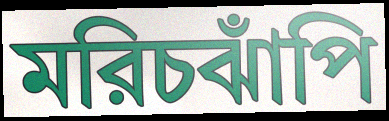
মরিচঝাঁপি